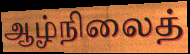
ஆழ்நிலைத்